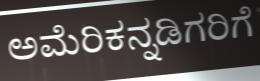
ಅಮೆರಿಕನ್ನಡಿಗರಿಗೆ